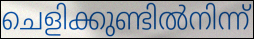
ചെളിക്കുണ്ടിൽനിന്ന്